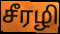
சீரழி